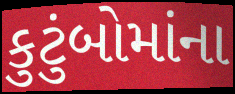
કુટુંબોમાંના